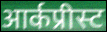
आर्कप्रीस्ट